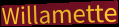
Willamette